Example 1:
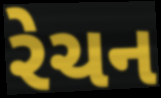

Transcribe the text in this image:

રેચન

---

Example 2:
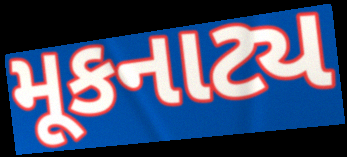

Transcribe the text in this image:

મૂકનાટ્ય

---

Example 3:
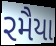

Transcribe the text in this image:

રમૈયા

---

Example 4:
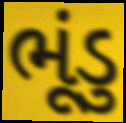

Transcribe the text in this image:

ભૂંડુ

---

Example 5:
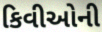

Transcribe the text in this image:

કિવીઓની